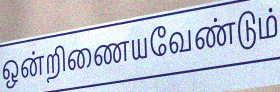
ஒன்றிணையவேண்டும்